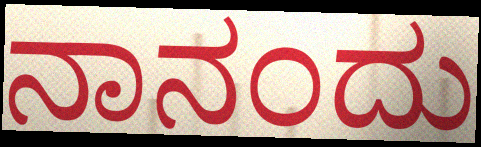
ನಾನಂದು